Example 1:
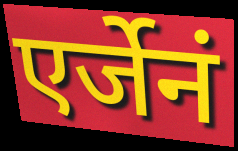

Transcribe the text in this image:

एर्जेनं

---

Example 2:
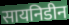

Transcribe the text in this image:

सायनिडीन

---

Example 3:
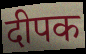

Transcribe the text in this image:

दीपक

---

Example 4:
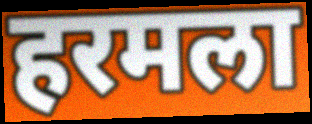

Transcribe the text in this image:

हरमला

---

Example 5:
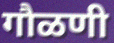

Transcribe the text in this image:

गौळणी